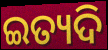
ଇତ୍ୟଦି